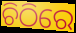
ଚିଠିରେ